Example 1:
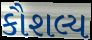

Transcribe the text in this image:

કૌશલ્ય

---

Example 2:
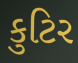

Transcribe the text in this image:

કુટિર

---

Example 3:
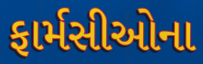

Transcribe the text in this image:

ફાર્મસીઓના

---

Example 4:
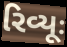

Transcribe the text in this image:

રિવ્યૂઃ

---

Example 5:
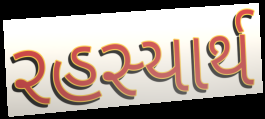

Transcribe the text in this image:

રહસ્યાર્થ